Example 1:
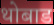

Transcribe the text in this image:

थोबाड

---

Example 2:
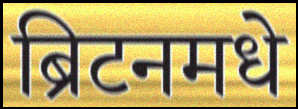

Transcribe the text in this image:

ब्रिटनमधे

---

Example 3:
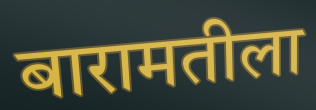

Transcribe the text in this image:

बारामतीला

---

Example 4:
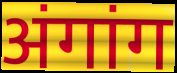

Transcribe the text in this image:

अंगांग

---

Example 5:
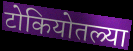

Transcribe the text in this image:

टोकियोतल्या